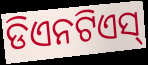
ଡିଏନଟିଏସ୍